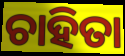
ଚାହିତା